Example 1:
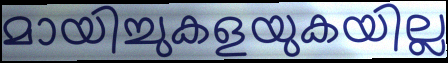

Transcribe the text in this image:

മായിച്ചുകളയുകയില്ല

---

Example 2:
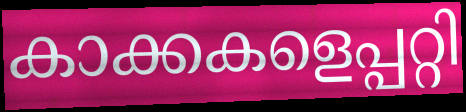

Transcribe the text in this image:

കാക്കകളെപ്പറ്റി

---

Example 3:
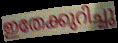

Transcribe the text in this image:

ഇതേക്കുറിച്ചു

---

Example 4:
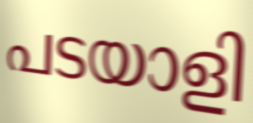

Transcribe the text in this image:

പടയാളി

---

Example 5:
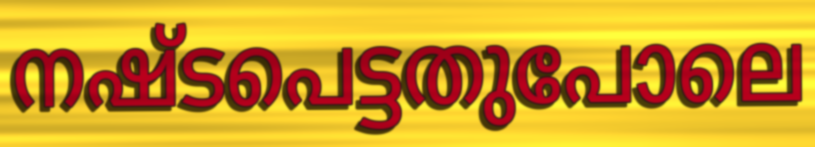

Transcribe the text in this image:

നഷ്ടപെട്ടതുപോലെ